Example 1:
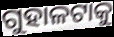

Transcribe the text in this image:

ଗୁହାଳଟାକୁ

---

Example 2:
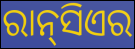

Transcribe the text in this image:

ରାନ୍‌ସିଏର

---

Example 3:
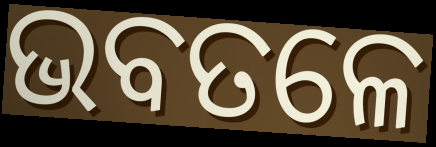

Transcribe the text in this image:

ଭବତଳେ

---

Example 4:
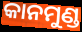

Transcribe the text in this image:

କାନମୁଣ୍ଡ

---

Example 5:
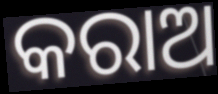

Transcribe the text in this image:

କରାଅ